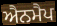
ਐਨਮੈਪ